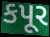
કપૂર